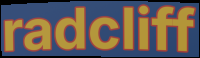
radcliff